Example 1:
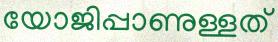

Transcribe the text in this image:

യോജിപ്പാണുള്ളത്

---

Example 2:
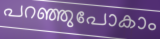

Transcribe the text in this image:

പറഞ്ഞുപോകാം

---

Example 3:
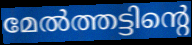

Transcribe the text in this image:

മേൽത്തട്ടിന്റെ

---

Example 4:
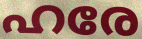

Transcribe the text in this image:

ഹരേ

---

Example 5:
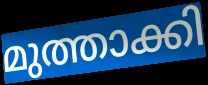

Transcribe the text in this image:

മുത്താക്കി